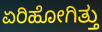
ಏರಿಹೋಗಿತ್ತು